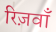
रिज़वाँ